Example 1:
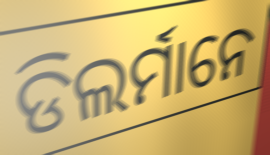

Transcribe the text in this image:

ଡିଲର୍ମାନେ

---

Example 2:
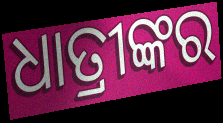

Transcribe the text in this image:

ଧାତ୍ରୀଙ୍କର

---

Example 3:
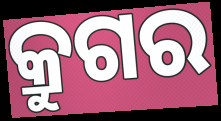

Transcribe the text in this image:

କ୍ରୁଗର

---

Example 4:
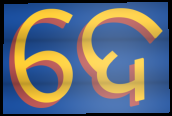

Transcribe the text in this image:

ଦେ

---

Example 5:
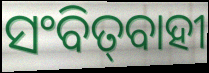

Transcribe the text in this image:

ସଂବିତ୍‌ବାହୀ